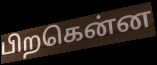
பிறகென்ன